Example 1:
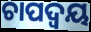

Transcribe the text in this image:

ଚାପଦ୍ଵୟ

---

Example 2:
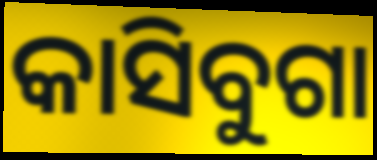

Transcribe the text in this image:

କାସିବୁଗା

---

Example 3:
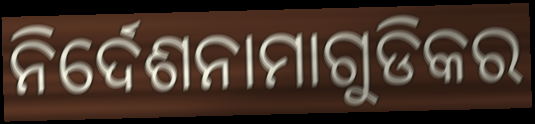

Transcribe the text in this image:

ନିର୍ଦେଶନାମାଗୁଡିକର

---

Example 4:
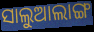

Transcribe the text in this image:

ସାଲୁଆଲାଙ୍ଗ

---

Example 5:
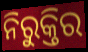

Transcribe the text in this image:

ନିରୁକ୍ତିର